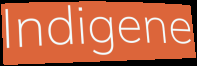
Indigene